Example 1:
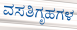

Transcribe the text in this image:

ವಸತಿಗೃಹಗಳ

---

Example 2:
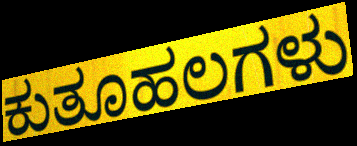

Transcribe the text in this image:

ಕುತೂಹಲಗಳು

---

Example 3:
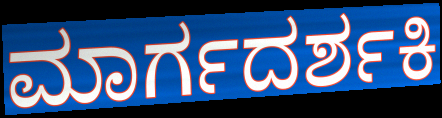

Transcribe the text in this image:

ಮಾರ್ಗದರ್ಶಕಿ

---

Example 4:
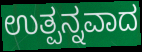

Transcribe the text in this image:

ಉತ್ಪನ್ನವಾದ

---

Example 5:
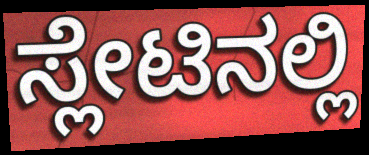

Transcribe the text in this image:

ಸ್ಲೇಟಿನಲ್ಲಿ